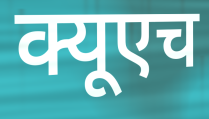
क्यूएच